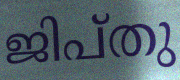
ജിപ്തു